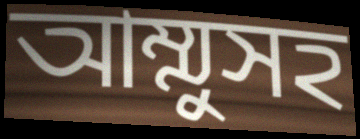
আম্মুসহ